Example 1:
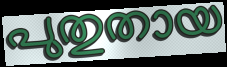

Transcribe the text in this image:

പുതുതായ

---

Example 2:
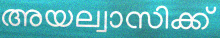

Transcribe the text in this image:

അയല്വാസിക്ക്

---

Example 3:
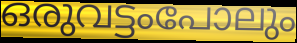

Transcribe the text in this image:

ഒരുവട്ടംപോലും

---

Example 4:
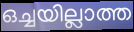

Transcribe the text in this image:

ഒച്ചയില്ലാത്ത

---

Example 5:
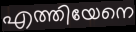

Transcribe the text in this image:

എത്തിയേനെ